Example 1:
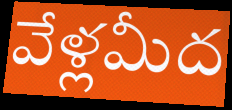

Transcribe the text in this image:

వేళ్లమీద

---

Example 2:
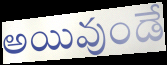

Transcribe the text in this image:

అయివుండే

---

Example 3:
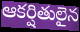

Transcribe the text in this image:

ఆకర్షితులైన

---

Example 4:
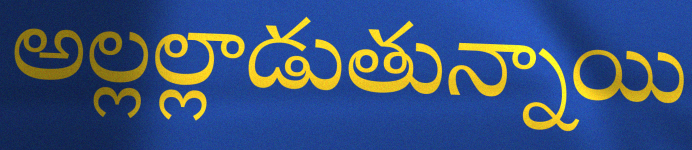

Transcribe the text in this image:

అల్లల్లాడుతున్నాయి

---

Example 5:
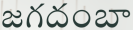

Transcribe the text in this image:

జగదంబా